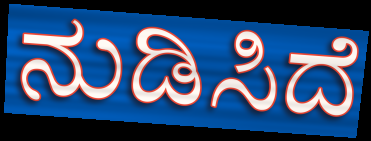
ನುಡಿಸಿದೆ